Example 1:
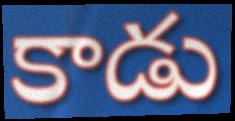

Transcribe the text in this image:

కాడు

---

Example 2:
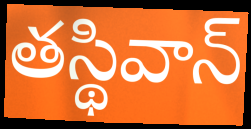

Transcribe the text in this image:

తస్థివాన్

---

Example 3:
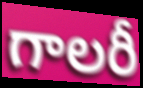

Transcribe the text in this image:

గాలరీ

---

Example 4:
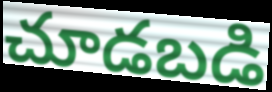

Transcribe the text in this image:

చూడబడి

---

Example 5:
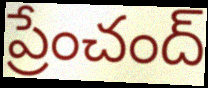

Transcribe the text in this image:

ప్రేంచంద్